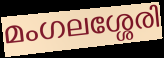
മംഗലശ്ശേരി